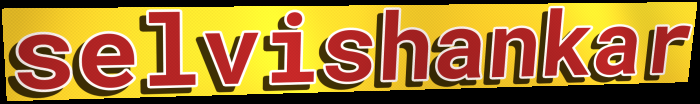
selvishankar